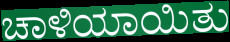
ಚಾಳಿಯಾಯಿತು